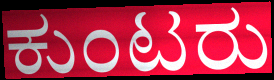
ಕುಂಟರು